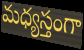
మధ్యస్తంగా